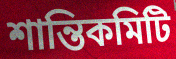
শান্তিকমিটি